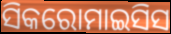
ସିକରୋମାଇସିସ